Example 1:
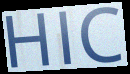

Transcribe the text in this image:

HIC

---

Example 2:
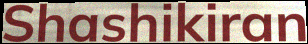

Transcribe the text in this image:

Shashikiran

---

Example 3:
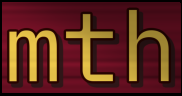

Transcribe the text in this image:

mth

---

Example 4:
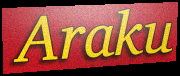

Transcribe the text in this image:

Araku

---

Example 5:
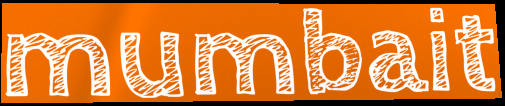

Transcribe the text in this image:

mumbait